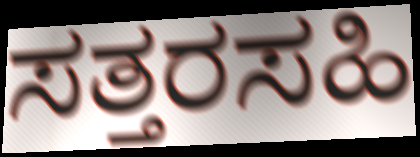
ಸತ್ತರಸಹಿ